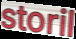
storil